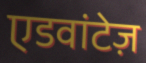
एडवांटेज़